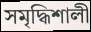
সমৃদ্ধিশালী